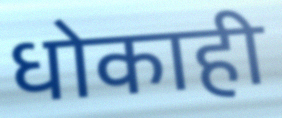
धोकाही